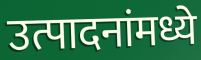
उत्पादनांमध्ये